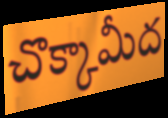
చొక్కామీద